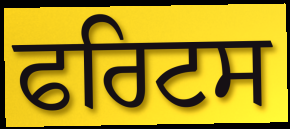
ਫਰਿਟਸ